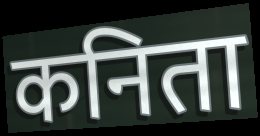
कनिता